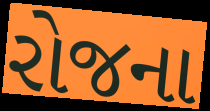
રોજના